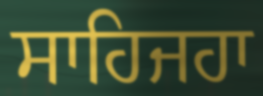
ਸਾਹਿਜਹਾ